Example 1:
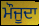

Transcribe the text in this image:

ਮੌਜੂਦਾ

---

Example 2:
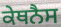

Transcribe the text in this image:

ਕੇਥਨੈਸ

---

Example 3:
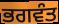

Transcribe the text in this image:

ਭਗਵੰਤ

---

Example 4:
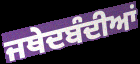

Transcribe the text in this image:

ਜਥੇਦਬੰਦੀਆਂ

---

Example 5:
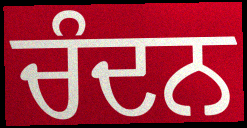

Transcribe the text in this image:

ਚੰਦਨ